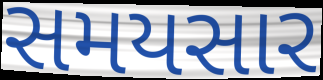
સમયસાર